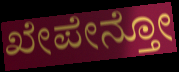
ಖೇಪೇನ್ತೋ